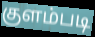
குளம்படி